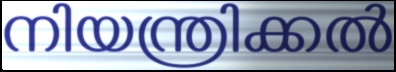
നിയന്ത്രിക്കൽ